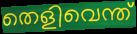
തെളിവെന്ത്